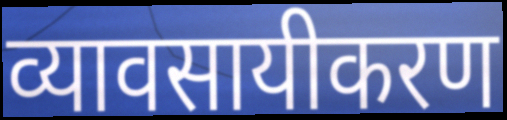
व्यावसायीकरण